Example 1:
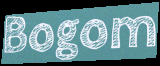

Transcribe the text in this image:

Bogom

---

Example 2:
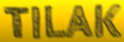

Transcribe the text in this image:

TILAK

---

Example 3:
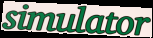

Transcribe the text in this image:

simulator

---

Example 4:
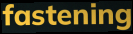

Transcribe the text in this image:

fastening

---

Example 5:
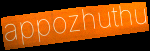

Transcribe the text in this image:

appozhuthu